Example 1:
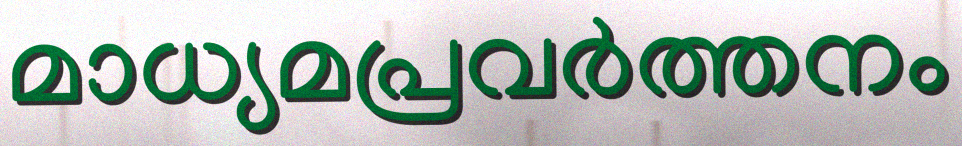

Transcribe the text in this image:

മാധ്യമപ്രവർത്തനം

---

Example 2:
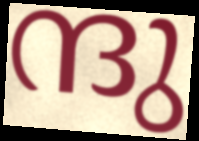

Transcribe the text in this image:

ന്ദു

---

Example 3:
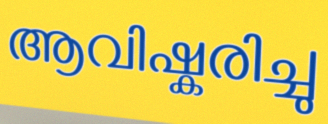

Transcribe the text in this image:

ആവിഷ്കരിച്ചു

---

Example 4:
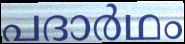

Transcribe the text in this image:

പദാർഥം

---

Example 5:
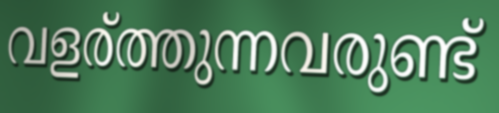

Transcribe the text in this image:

വളര്ത്തുന്നവരുണ്ട്